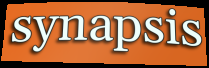
synapsis